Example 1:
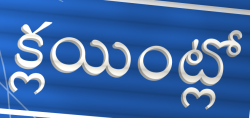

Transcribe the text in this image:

క్లయింట్లో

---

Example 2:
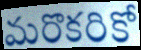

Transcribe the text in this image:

మరొకరికో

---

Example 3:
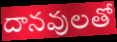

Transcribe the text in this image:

దానవులతో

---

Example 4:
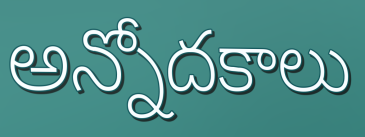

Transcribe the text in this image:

అన్నోదకాలు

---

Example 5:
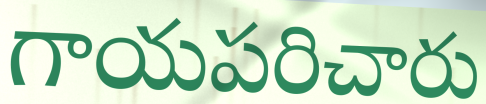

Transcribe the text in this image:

గాయపరిచారు